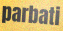
parbati